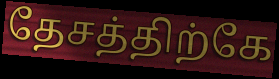
தேசத்திற்கே